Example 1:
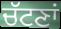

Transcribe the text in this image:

ਚੱਟਣਾਂ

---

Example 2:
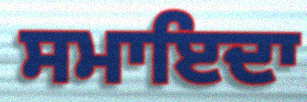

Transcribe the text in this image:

ਸਮਾਇਦਾ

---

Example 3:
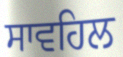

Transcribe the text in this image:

ਸਾਵਹਿਲ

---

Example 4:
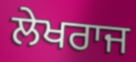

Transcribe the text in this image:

ਲੇਖਰਾਜ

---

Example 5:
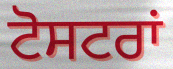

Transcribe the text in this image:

ਟੋਸਟਰਾਂ